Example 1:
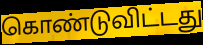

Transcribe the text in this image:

கொண்டுவிட்டது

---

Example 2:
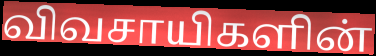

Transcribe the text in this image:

விவசாயிகளின்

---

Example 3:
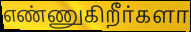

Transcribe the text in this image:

எண்ணுகிறீர்களா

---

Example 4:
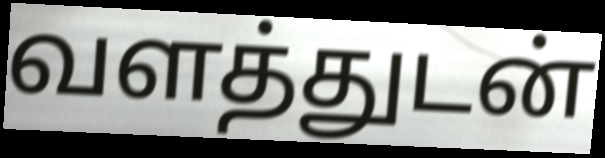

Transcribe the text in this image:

வளத்துடன்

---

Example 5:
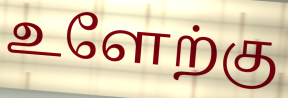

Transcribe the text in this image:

உளேற்கு